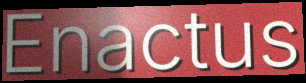
Enactus